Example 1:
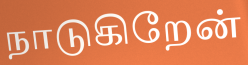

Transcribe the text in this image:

நாடுகிறேன்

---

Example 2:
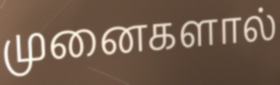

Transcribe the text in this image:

முனைகளால்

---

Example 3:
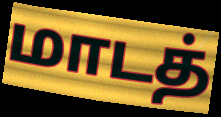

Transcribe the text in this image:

மாடத்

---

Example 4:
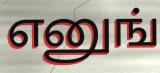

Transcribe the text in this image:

எனுங்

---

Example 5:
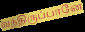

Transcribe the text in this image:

வந்திருப்பானே